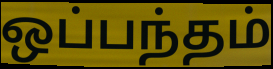
ஒப்பந்தம்